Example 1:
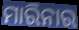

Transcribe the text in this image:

ମାରିନାର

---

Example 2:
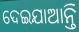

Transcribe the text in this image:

ଦେଇଯାଆନ୍ତି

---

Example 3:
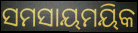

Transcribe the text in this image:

ସମସାୟମୟିକ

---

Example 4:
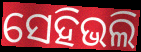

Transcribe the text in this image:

ସେହିଭଲି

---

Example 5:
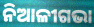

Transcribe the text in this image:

ନିଆଳୀଗଭା